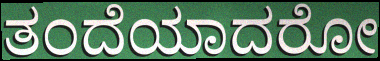
ತಂದೆಯಾದರೋ